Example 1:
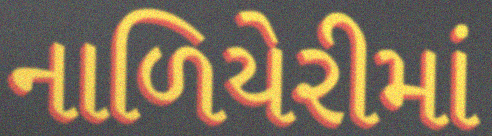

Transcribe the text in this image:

નાળિયેરીમાં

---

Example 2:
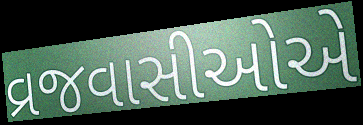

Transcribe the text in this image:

વ્રજવાસીઓએ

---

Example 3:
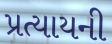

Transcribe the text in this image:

પ્રત્યાયની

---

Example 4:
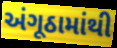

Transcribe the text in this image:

અંગૂઠામાંથી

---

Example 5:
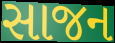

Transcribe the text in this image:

સાજન